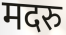
मदरु